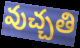
వుచ్చతి